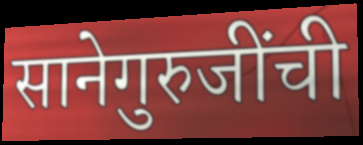
सानेगुरुजींची